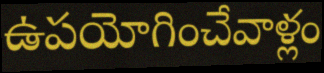
ఉపయోగించేవాళ్లం